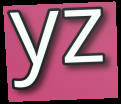
yz